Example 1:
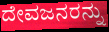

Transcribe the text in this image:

ದೇವಜನರನ್ನು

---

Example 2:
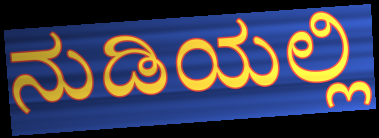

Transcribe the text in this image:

ನುಡಿಯಲ್ಲಿ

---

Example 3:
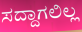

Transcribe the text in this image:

ಸದ್ದಾಗಲಿಲ್ಲ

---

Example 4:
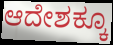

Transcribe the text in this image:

ಆದೇಶಕ್ಕೂ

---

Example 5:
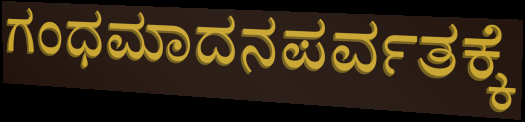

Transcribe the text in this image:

ಗಂಧಮಾದನಪರ್ವತಕ್ಕೆ